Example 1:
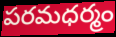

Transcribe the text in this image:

పరమధర్మం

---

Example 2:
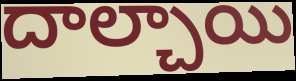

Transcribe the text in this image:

దాల్చాయి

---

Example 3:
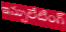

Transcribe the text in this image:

ఇన్సులేటింగ్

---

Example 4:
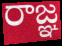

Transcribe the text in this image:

రాజ్ఞ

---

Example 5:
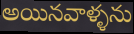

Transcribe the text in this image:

అయినవాళ్ళను